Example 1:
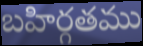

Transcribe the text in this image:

బహిర్గతము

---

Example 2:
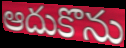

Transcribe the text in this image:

ఆదుకొను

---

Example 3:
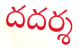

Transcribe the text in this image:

దదర్శ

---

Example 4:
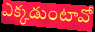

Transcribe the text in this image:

ఎక్కడుంటావో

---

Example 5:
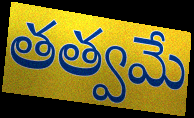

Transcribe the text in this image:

తత్వమే